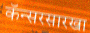
कॅन्सरसारखा